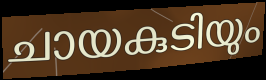
ചായകുടിയും